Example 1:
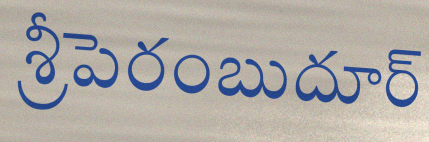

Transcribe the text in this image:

శ్రీపెరంబుదూర్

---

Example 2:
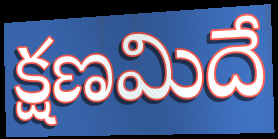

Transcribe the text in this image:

క్షణమిదే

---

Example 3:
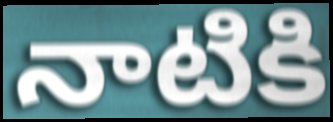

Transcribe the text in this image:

నాటికి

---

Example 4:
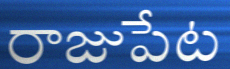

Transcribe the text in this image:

రాజుపేట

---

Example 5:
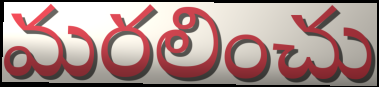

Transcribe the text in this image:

మరలించు